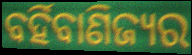
ବର୍ହିବାଣିଜ୍ୟର